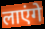
लाएंगे